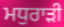
ਮਧੁਰਾੜੀ